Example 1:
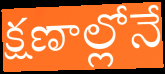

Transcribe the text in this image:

క్షణాల్లోనే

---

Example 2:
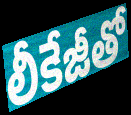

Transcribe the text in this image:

లీకేజీతో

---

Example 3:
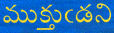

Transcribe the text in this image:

ముక్తుఁడని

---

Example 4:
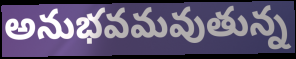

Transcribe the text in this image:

అనుభవమవుతున్న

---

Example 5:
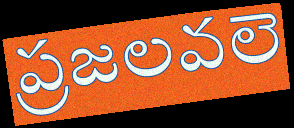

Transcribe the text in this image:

ప్రజలవలె